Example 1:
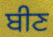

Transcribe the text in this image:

ਬੀਣ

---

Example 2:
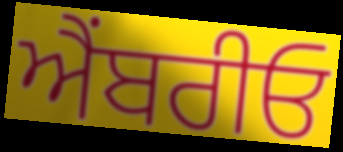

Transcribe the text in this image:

ਐਂਬਰੀਓ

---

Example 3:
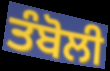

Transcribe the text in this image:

ਤੰਬੋਲੀ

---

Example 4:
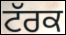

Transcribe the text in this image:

ਟੱਰਕ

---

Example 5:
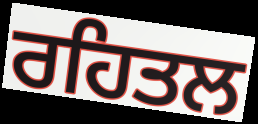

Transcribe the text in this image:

ਰਹਿਤਲ